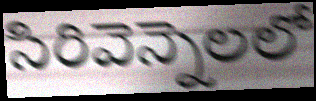
సిరివెన్నెలలో